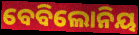
ବେବିଲୋନିୟ